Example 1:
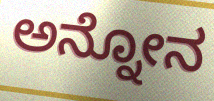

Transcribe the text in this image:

ಅನ್ನೋನ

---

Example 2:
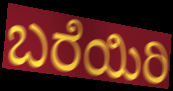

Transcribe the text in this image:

ಬರೆಯಿರಿ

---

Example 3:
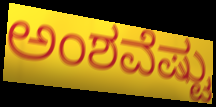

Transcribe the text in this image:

ಅಂಶವೆಷ್ಟು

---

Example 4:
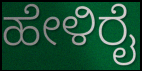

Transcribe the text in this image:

ಹೇಳಿರೈ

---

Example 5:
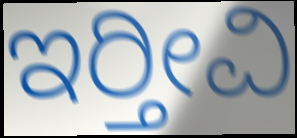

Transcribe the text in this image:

ಇರ‍್ತೀವಿ